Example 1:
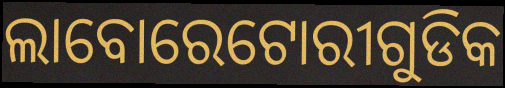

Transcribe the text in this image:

ଲାବୋରେଟୋରୀଗୁଡିକ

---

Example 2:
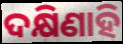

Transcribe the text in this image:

ଦକ୍ଷିଣାହି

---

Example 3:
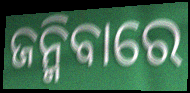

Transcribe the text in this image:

ଜନ୍ମିବାରେ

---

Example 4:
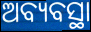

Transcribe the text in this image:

ଅବ୍ୟବସ୍ଥା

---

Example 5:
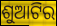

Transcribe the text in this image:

ଶୁଆଟିର